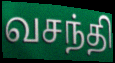
வசந்தி